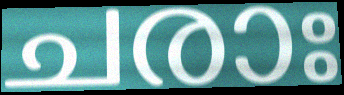
ചരാഃ